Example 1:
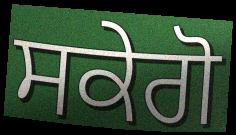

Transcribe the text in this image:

ਸਕੇਗੋ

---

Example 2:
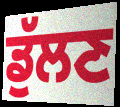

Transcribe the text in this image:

ਡੁੱਲਣ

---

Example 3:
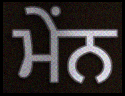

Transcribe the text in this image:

ਮੇਂਨ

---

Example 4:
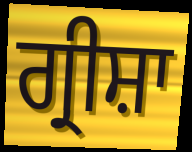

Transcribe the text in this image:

ਗ੍ਰੀਸ਼ਾ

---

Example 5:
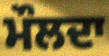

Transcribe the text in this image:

ਮੌਲਦਾ